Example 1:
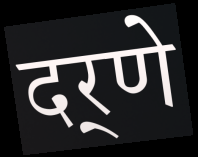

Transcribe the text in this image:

दर्णे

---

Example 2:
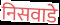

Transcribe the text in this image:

निसवाडे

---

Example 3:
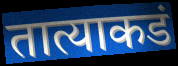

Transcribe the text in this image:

तात्याकडं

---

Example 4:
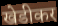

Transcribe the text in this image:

खेडीकर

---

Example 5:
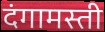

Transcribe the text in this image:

दंगामस्ती